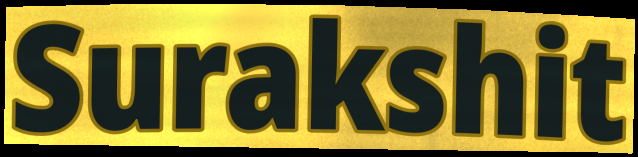
Surakshit